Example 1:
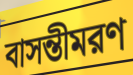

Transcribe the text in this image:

বাসন্তীমরণ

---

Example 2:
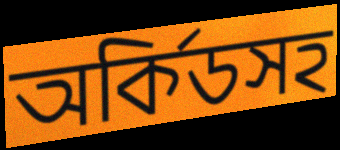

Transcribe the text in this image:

অর্কিডসহ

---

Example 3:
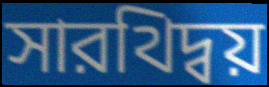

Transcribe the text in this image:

সারথিদ্বয়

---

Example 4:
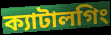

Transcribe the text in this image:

ক্যাটালগিং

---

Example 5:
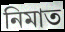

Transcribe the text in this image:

নিমাত